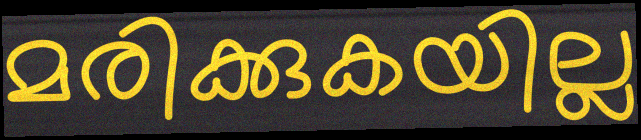
മരിക്കുകയില്ല